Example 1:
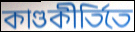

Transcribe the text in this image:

কাণ্ডকীর্তিতে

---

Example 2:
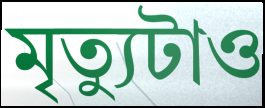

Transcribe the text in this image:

মৃত্যুটাও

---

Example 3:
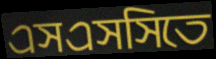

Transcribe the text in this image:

এসএসসিতে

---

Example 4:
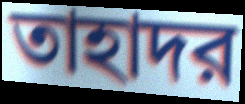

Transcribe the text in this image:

তাহাদর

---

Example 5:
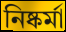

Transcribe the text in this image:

নিষ্কর্মা